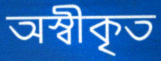
অস্বীকৃত